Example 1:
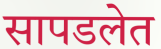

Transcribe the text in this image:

सापडलेत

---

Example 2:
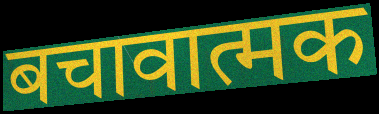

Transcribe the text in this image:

बचावात्मक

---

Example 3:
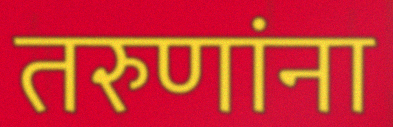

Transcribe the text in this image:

तरुणांना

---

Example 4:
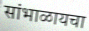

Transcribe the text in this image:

सांभाळायचा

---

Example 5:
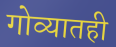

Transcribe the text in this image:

गोव्यातही